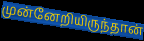
முன்னேறியிருந்தான்